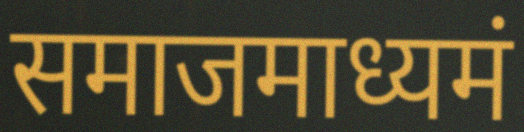
समाजमाध्यमं